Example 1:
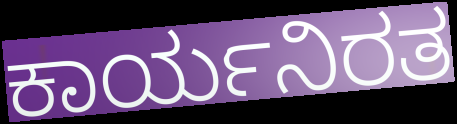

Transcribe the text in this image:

ಕಾರ್ಯನಿರತ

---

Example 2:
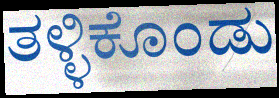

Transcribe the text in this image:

ತಳ್ಳಿಕೊಂಡು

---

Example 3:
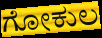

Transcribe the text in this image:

ಗೋಕುಲ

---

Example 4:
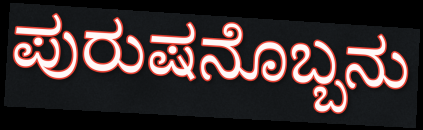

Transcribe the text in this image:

ಪುರುಷನೊಬ್ಬನು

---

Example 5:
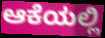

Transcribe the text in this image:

ಆಕೆಯಲ್ಲಿ